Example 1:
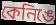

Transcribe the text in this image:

কেনিঙে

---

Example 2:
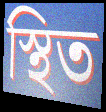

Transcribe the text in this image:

স্থিত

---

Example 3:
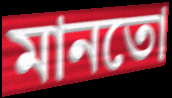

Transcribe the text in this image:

মানতো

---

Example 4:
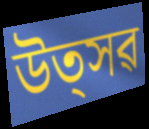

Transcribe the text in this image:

উত্সৱ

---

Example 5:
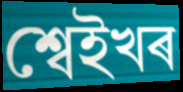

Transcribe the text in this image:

শ্বেইখৰ